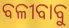
ବଳୀବାବୁ